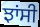
ਝਾਂਸੀ